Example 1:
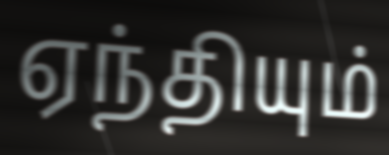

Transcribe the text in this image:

ஏந்தியும்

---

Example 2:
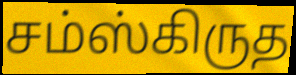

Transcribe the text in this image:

சம்ஸ்கிருத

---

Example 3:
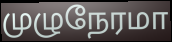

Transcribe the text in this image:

முழுநேரமா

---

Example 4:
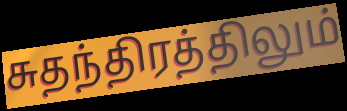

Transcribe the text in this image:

சுதந்திரத்திலும்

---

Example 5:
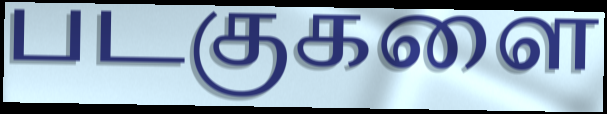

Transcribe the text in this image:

படகுகளை